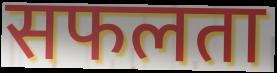
सफलता